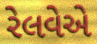
રેલવેએ